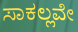
ಸಾಕಲ್ಲವೇ